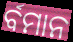
ର୍ବମାନ